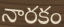
నారకం